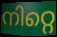
നിറ്റെ